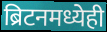
ब्रिटनमध्येही